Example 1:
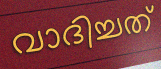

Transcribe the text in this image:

വാദിച്ചത്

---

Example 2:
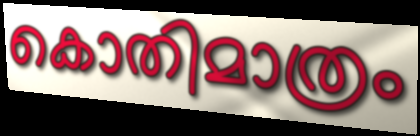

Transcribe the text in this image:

കൊതിമാത്രം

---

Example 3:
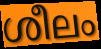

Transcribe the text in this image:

ശീലം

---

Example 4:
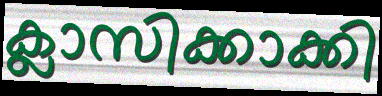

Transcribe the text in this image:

ക്ലാസിക്കാക്കി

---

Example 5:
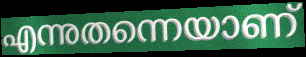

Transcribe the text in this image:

എന്നുതന്നെയാണ്